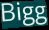
Bigg